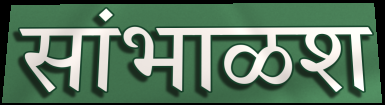
सांभाळश